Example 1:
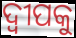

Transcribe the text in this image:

ଦ୍ୱୀପକୁ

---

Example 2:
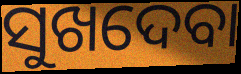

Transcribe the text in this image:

ସୁଖଦେବା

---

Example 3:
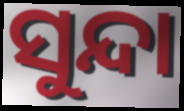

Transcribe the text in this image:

ସୁନ୍ଦା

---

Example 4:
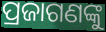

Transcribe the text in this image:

ପ୍ରଜାଗଣଙ୍କୁ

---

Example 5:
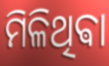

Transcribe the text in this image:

ମିଳିଥିଵା